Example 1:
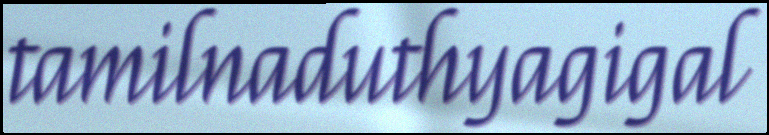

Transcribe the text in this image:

tamilnaduthyagigal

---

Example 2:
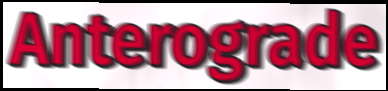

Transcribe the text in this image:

Anterograde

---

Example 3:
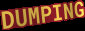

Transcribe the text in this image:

DUMPING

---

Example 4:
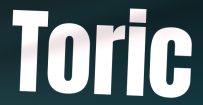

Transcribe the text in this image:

Toric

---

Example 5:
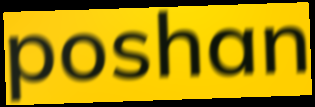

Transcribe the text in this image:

poshan